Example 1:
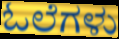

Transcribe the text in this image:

ಓಲೆಗಳು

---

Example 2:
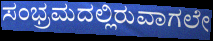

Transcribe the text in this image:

ಸಂಭ್ರಮದಲ್ಲಿರುವಾಗಲೇ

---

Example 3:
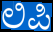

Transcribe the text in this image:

ಲಿಪಿ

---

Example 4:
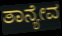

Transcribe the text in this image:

ತಾನ್ಯೇವ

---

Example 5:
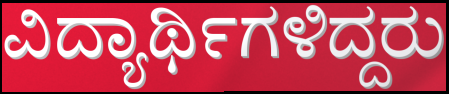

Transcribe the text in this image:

ವಿದ್ಯಾರ್ಥಿಗಳಿದ್ದರು